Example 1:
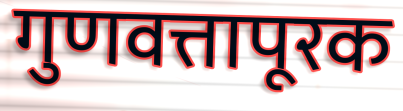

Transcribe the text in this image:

गुणवत्तापूरक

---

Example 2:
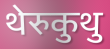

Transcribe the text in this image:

थेरुकुथु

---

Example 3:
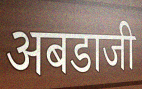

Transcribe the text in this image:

अबडाजी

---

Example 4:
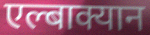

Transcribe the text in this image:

एल्बाक्यान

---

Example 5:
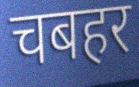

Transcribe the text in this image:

चबहर